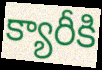
క్యారీకి